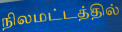
நிலமட்டத்தில்